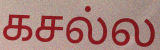
கசல்ல